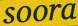
soora